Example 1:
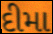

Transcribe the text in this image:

દીમા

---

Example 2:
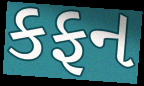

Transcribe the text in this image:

કફન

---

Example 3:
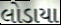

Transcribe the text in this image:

લોડાયા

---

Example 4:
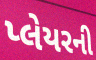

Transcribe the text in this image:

પ્લેયરની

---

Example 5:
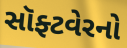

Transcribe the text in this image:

સૉફ્ટવેરનો